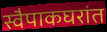
स्वैपाकघरांत